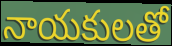
నాయకులతో